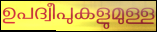
ഉപദ്വീപുകളുമുള്ള